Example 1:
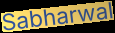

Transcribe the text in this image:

Sabharwal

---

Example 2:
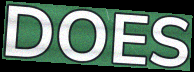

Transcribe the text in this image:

DOES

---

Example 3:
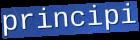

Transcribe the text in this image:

principi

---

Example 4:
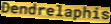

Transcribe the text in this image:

Dendrelaphis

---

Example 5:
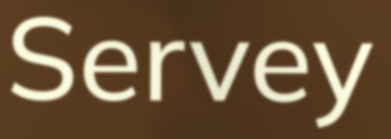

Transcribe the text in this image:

Servey